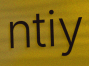
ntiy